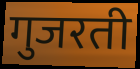
गुजरती